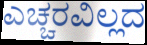
ಎಚ್ಚರವಿಲ್ಲದ